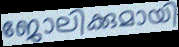
ജോലിക്കുമായി